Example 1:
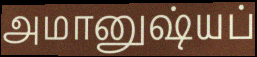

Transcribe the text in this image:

அமானுஷ்யப்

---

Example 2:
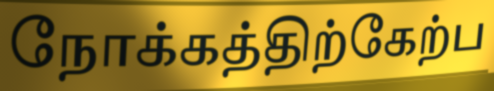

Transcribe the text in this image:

நோக்கத்திற்கேற்ப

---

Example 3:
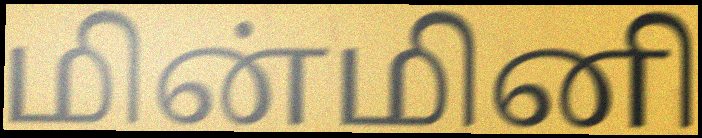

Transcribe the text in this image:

மின்மினி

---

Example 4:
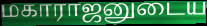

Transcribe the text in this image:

மகாராஜனுடைய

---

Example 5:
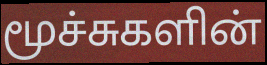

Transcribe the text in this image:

மூச்சுகளின்